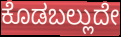
ಕೊಡಬಲ್ಲುದೇ